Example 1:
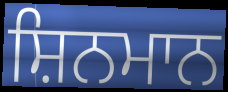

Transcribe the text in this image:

ਸ਼ਿਨਮਾਨ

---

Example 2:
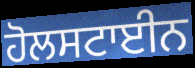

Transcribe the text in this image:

ਹੋਲਸਟਾਈਨ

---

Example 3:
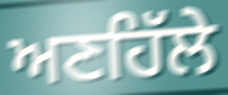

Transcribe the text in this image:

ਅਣਹਿੱਲੇ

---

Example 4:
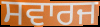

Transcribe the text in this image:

ਸਵਾਰਜ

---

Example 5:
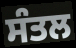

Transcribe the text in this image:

ਸੰਤਲ